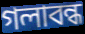
গলাবন্ধ